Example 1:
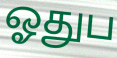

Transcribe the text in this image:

ஓதுப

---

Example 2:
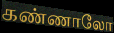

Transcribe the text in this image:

கண்ணாலோ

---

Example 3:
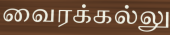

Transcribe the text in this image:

வைரக்கல்லு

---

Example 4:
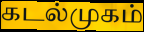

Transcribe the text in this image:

கடல்முகம்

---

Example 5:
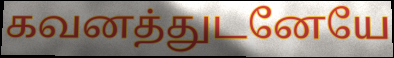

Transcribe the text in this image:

கவனத்துடனேயே